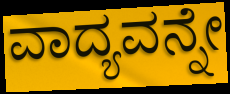
ವಾದ್ಯವನ್ನೇ